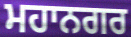
ਮਹਾਨਗਰ